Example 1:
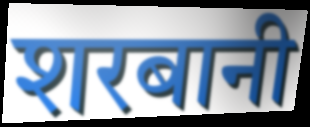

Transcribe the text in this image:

शरबानी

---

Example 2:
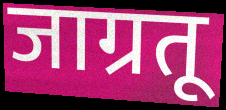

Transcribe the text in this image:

जाग्रतू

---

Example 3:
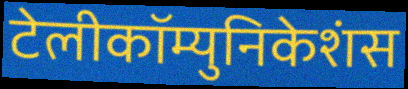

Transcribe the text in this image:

टेलीकॉम्युनिकेशंस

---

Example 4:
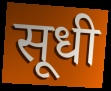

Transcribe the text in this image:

सूधी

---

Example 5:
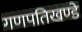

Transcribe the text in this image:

गणपतिखण्डे